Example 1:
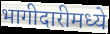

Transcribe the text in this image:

भागीदारीमध्ये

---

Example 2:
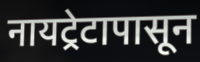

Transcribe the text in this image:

नायट्रेटापासून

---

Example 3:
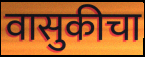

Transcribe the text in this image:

वासुकीचा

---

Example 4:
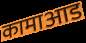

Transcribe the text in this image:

कामाआड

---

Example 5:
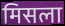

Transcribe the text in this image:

मिसला